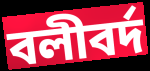
বলীবর্দ